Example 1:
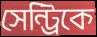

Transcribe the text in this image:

সেন্ট্রিকে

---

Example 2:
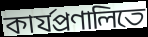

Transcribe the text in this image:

কার্যপ্রণালিতে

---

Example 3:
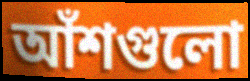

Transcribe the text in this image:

আঁশগুলো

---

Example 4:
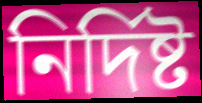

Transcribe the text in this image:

নির্দিষ্ট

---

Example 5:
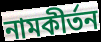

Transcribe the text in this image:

নামকীর্তন